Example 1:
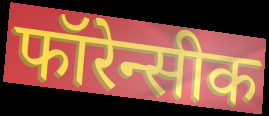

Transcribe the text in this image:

फॉरेन्सीक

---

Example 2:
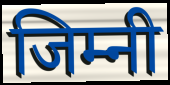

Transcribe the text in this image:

जिम्नी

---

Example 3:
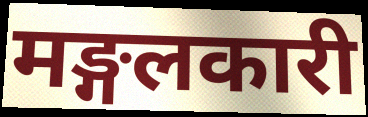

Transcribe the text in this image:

मङ्गलकारी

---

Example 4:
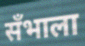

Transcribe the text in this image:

सँभाला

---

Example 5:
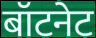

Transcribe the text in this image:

बॉटनेट